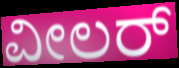
ವೀಲರ್